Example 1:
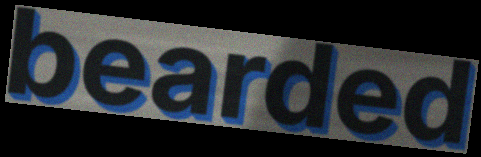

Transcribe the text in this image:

bearded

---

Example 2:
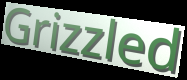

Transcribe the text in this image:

Grizzled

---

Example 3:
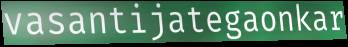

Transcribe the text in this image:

vasantijategaonkar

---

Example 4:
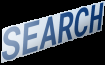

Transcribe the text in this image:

SEARCH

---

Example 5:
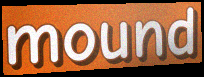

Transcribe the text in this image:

mound